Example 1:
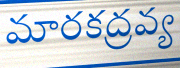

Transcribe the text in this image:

మారకద్రవ్య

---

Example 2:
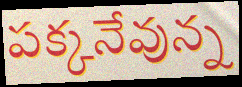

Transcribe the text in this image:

పక్కనేవున్న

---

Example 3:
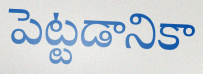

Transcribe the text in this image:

పెట్టడానికా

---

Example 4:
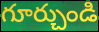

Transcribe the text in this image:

గూర్చుండి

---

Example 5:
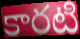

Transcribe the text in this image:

కారటి